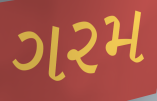
ગરમ